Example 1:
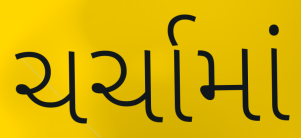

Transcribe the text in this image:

ચર્ચામાં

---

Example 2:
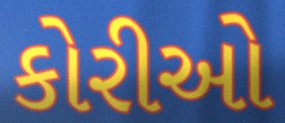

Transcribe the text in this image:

કોરીઓ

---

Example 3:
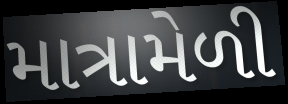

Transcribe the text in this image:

માત્રામેળી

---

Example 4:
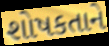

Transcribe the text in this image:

શોષકતાને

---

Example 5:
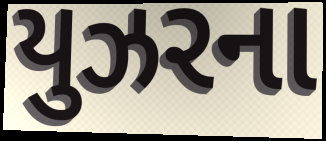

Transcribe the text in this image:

યુઝરના